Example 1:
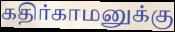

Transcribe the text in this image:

கதிர்காமனுக்கு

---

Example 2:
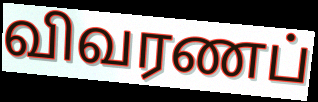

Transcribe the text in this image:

விவரணப்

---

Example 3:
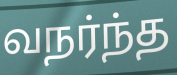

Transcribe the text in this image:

வநர்ந்த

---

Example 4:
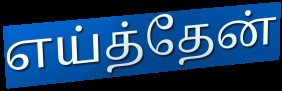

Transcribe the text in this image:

எய்த்தேன்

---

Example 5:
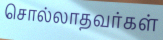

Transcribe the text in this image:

சொல்லாதவர்கள்